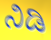
ನಿಡಿ